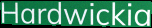
Hardwickia